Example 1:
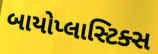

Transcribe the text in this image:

બાયોપ્લાસ્ટિક્સ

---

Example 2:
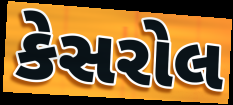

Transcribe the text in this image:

કેસરોલ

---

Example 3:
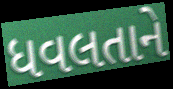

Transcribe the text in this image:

ધવલતાને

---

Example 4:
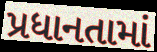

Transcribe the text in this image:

પ્રધાનતામાં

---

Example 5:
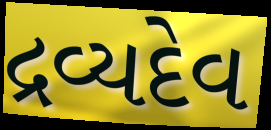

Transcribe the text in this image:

દ્રવ્યદેવ